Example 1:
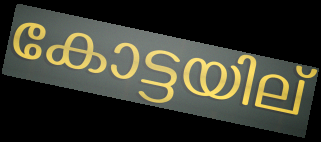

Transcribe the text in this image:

കോട്ടയില്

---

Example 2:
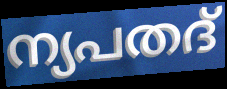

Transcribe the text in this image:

ന്യപതദ്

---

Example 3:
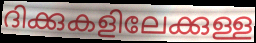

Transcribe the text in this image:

ദിക്കുകളിലേക്കുള്ള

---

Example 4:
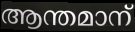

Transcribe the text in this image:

ആന്തമാന്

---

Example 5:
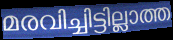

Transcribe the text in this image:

മരവിച്ചിട്ടില്ലാത്ത